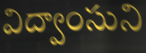
విద్వాంసుని